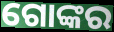
ଗୋଙ୍କର